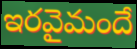
ఇరవైమందే